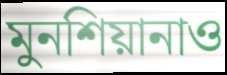
মুনশিয়ানাও